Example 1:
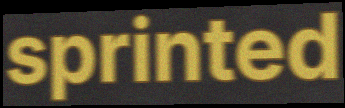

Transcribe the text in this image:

sprinted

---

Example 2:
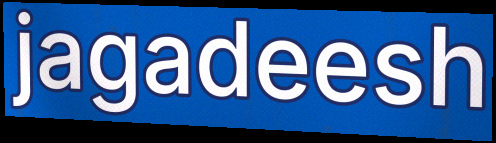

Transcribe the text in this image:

jagadeesh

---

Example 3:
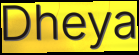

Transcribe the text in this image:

Dheya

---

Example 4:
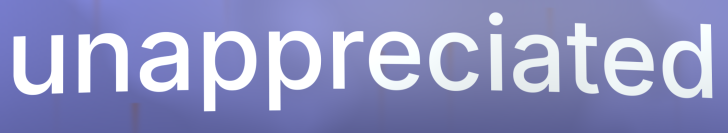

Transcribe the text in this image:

unappreciated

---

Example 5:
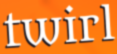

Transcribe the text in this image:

twirl